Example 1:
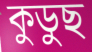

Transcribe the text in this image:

কুডুছ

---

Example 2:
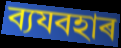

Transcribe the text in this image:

ব্যযবহাৰ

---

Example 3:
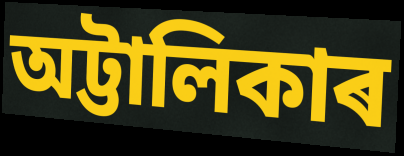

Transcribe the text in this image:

অট্টালিকাৰ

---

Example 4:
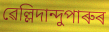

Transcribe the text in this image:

ৱেল্লিদান্দুপাৰুৰ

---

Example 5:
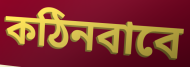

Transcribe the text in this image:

কঠিনবাবে